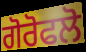
ਗੋਰੋਫਲੋ